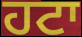
ਹਟਾ